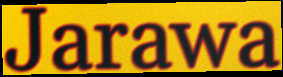
Jarawa